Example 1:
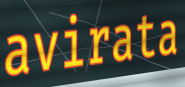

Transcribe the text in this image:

avirata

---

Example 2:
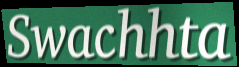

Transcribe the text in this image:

Swachhta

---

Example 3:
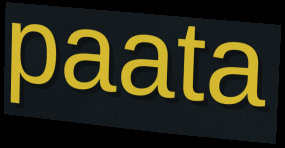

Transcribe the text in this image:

paata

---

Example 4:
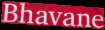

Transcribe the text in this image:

Bhavane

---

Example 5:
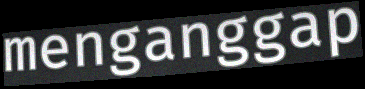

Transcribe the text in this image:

menganggap